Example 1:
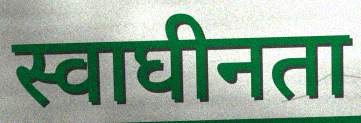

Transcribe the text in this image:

स्वाघीनता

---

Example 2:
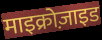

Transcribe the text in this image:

माइक्रोज़ाइड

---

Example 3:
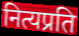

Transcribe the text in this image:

नित्यप्रति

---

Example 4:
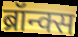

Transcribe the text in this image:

ब्रॉन्क्स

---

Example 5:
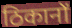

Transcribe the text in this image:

ठिकानों